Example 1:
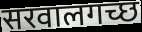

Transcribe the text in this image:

सरवालगच्छ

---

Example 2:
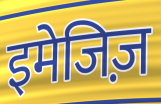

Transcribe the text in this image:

इमेजिज़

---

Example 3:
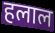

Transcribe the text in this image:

हलाल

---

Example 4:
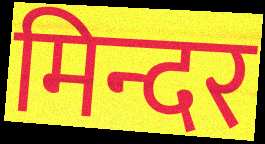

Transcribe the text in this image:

मिन्दर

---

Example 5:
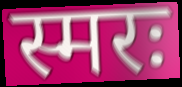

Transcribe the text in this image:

स्मरः